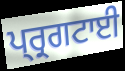
ਪ੍ਰ੍ਰਗਟਾਈ